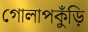
গোলাপকুঁড়ি